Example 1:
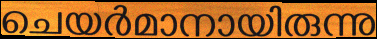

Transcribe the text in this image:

ചെയർമാനായിരുന്നു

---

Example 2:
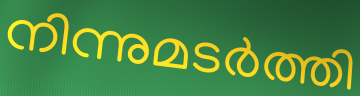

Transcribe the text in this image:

നിന്നുമടർത്തി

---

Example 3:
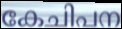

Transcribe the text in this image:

കേചിപന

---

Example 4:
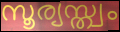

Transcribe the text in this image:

സൂര്യസ്ത്വം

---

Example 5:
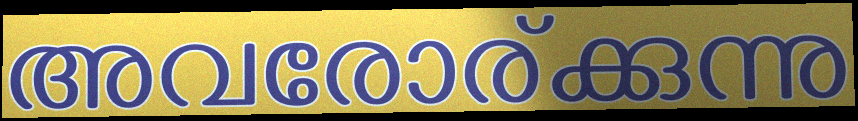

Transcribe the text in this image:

അവരോര്ക്കുന്നു